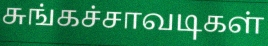
சுங்கச்சாவடிகள்